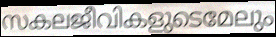
സകലജീവികളുടെമേലും